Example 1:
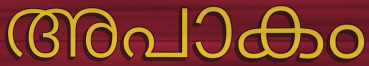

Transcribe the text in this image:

അപാകം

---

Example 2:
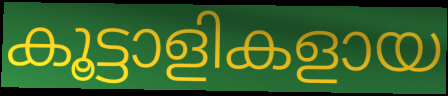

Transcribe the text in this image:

കൂട്ടാളികളായ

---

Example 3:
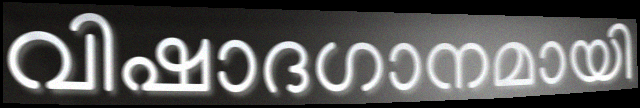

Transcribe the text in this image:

വിഷാദഗാനമായി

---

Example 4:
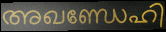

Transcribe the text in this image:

അഖണ്ഡേഹി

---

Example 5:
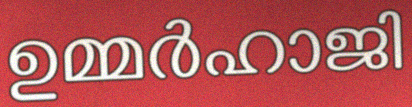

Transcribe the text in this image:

ഉമ്മർഹാജി